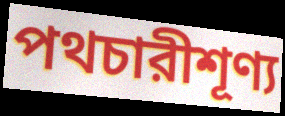
পথচারীশূণ্য